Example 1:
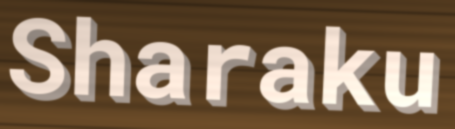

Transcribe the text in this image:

Sharaku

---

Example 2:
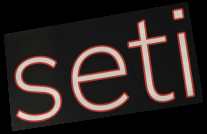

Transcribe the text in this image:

seti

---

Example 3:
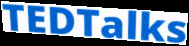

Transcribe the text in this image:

TEDTalks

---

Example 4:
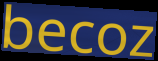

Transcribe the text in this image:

becoz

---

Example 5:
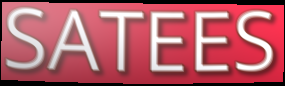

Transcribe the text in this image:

SATEES